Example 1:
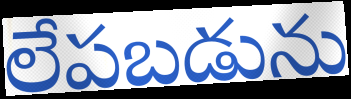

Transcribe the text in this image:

లేపబడును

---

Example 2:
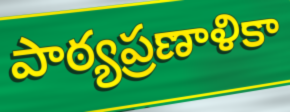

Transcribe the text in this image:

పాఠ్యప్రణాళికా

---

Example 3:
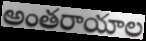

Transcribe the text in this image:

అంతరాయాల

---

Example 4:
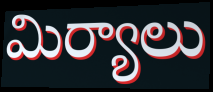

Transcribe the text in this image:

మిర్యాలు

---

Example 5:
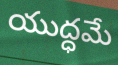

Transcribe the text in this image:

యుద్ధమే